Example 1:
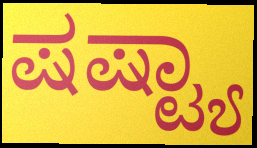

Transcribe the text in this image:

ಷಷ್ಟ್ಯಾ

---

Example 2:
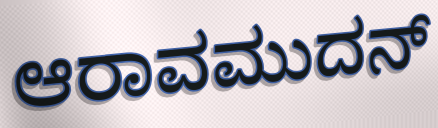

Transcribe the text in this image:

ಆರಾವಮುದನ್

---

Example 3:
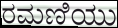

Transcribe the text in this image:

ರಮಣಿಯು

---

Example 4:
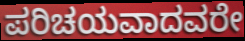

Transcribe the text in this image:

ಪರಿಚಯವಾದವರೇ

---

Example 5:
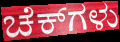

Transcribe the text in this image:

ಚೆಕ್‌ಗಳು